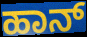
ಹಾನ್